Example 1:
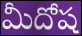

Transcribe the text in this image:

మీదోష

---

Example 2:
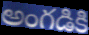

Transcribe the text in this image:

అంగడికి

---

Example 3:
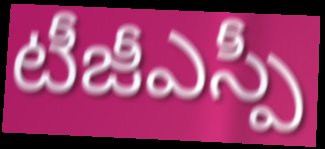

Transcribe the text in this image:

టీజీఎస్పీ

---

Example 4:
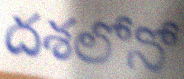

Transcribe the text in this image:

దశలోనో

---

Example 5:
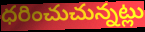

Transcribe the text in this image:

ధరించుచున్నట్లు